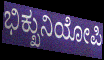
ಭಿಕ್ಖುನಿಯೋಪಿ